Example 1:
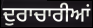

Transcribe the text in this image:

ਦੁਰਾਚਾਰੀਆਂ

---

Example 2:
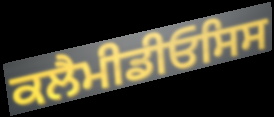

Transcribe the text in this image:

ਕਲੈਮੀਡੀਓਸਿਸ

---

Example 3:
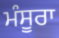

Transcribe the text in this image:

ਮੰਸੂਰਾ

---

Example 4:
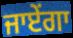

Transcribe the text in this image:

ਜਾਏਂਗਾ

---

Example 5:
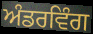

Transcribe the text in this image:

ਅੰਡਰਵਿੰਗ